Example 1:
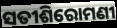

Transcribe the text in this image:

ସତୀଶିରୋମଣୀ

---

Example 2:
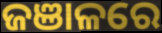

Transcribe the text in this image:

ଜଞାଳରେ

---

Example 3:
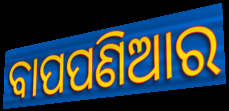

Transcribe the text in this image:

ବାପପଣିଆର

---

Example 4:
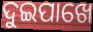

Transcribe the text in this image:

ଦୁଇପାଖେ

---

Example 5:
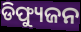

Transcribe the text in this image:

ଡିଫ୍ୟୁଜନ